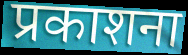
प्रकाशना